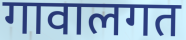
गावालगत